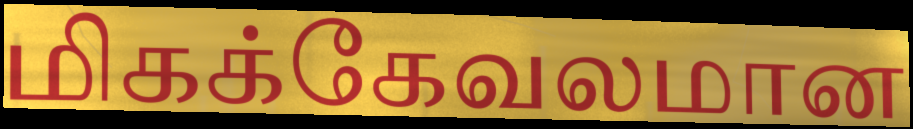
மிகக்கேவலமான